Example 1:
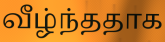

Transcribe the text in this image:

வீழ்ந்ததாக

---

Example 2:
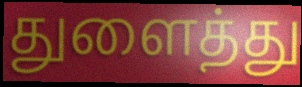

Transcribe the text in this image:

துளைத்து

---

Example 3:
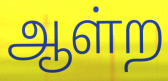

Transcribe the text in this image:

ஆள்ற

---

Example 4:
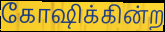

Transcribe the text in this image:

கோஷிக்கின்ற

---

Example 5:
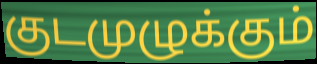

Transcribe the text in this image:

குடமுழுக்கும்